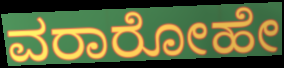
ವರಾರೋಹೇ